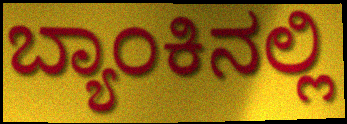
ಬ್ಯಾಂಕಿನಲ್ಲಿ